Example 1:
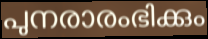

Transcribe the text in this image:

പുനരാരംഭിക്കും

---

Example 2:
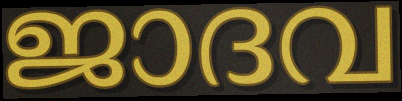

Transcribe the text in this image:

ജാദവ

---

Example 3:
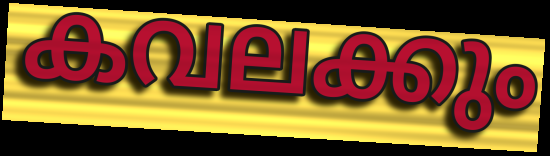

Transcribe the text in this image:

കവലക്കും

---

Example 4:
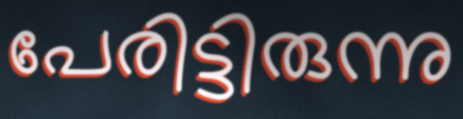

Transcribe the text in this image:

പേരിട്ടിരുന്നു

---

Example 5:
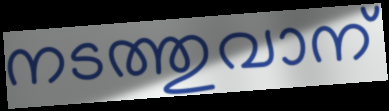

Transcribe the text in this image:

നടത്തുവാന്